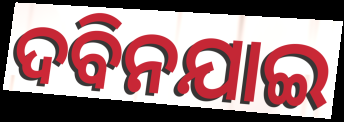
ଦବିନଯାଇ